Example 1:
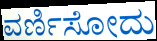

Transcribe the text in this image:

ವರ್ಣಿಸೋದು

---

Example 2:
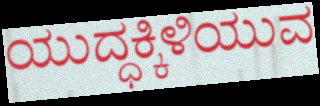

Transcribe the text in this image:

ಯುದ್ಧಕ್ಕಿಳಿಯುವ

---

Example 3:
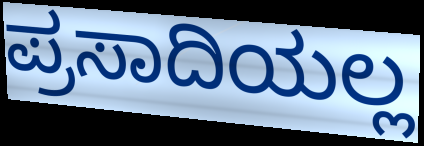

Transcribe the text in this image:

ಪ್ರಸಾದಿಯಲ್ಲ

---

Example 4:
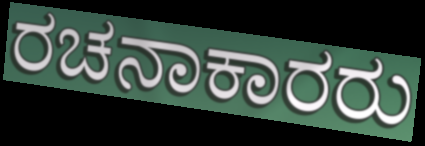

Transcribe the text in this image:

ರಚನಾಕಾರರು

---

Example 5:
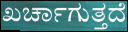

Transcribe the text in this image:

ಖರ್ಚಾಗುತ್ತದೆ